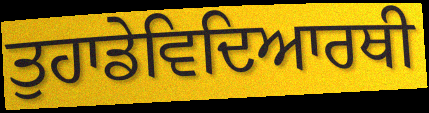
ਤੁਹਾਡੇਵਿਦਿਆਰਥੀ